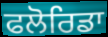
ਫਲੋਰਿਡਾ